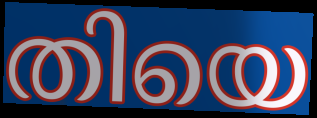
തിയെ